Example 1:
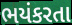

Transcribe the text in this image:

ભયંકરતા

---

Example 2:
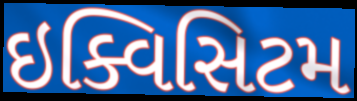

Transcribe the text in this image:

ઇક્વિસિટમ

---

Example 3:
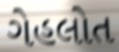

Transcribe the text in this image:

ગેહલોત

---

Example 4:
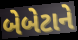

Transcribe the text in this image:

બેબેટાને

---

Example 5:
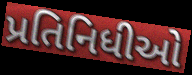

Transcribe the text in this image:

પ્રતિનિધીઓ